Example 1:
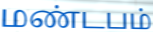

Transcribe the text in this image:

மண்டபம்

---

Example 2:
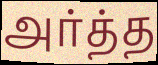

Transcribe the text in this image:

அர்த்த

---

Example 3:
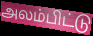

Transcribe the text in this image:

அலம்பிட்டு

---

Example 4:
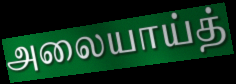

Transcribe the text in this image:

அலையாய்த்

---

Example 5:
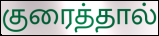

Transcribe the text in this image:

குரைத்தால்